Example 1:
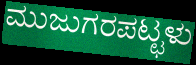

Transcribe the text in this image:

ಮುಜುಗರಪಟ್ಟಳು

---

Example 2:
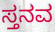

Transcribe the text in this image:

ಸ್ತನವ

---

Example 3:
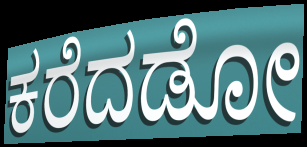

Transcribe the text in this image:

ಕರೆದಡೋ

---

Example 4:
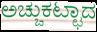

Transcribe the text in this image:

ಅಚ್ಚುಕಟ್ಟಾದ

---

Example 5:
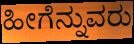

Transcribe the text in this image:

ಹೀಗೆನ್ನುವರು